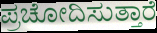
ಪ್ರಚೋದಿಸುತ್ತಾರೆ